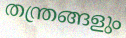
തന്ത്രങ്ങളും